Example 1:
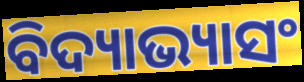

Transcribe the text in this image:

ବିଦ୍ୟାଭ୍ୟାସଂ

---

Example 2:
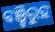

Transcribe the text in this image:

ବଞ୍ଚିରୁହ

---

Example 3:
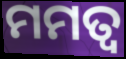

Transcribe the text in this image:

ମମତ୍ୱ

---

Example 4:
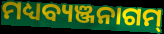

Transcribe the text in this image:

ମଧ୍ୟବ୍ୟଞ୍ଜନାଗମ୍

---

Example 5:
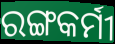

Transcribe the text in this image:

ରଙ୍ଗକର୍ମୀ